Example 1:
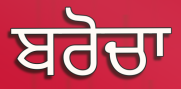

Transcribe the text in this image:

ਬਰੋਚਾ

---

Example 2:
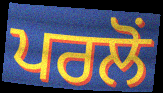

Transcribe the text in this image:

ਪਰਲੋਂ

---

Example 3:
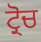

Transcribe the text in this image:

ਟ੍ਰੋਚ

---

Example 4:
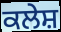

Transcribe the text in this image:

ਕਲੇਸ਼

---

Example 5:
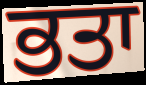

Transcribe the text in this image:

ਭਤਾ